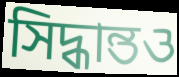
সিদ্ধান্তও